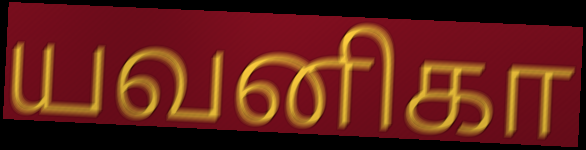
யவனிகா